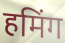
हमिंग